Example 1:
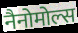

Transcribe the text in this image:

नैनोमोल्स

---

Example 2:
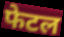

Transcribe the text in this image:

फेटल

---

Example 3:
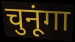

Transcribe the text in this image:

चुनूंगा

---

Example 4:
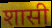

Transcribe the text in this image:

शासी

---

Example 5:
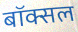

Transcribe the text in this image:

बॉक्सल